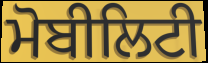
ਮੋਬੀਲਿਟੀ